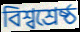
বিশ্বশ্ৰেষ্ঠ